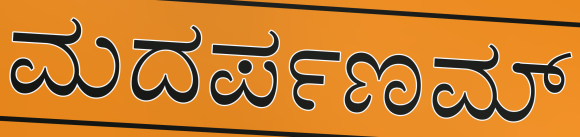
ಮದರ್ಪಣಮ್